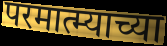
परमात्म्याच्या